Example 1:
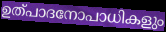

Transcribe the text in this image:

ഉത്പാദനോപാധികളും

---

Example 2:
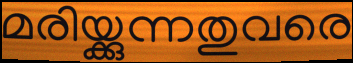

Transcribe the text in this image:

മരിയ്ക്കുന്നതുവരെ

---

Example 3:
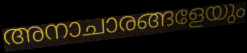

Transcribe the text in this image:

അനാചാരങ്ങളേയും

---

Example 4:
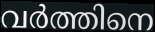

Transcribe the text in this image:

വർത്തിനെ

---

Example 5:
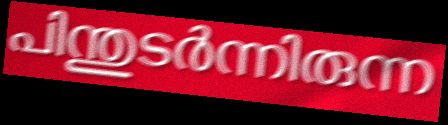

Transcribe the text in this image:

പിന്തുടർന്നിരുന്ന